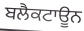
ਬਲੈਕਟਾਊਨ